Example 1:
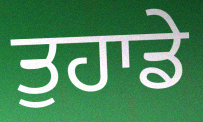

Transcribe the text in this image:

ਤੁਹਾਡੇ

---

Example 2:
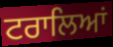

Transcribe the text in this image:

ਟਰਾਲਿਆਂ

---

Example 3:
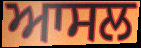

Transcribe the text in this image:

ਆਸਲ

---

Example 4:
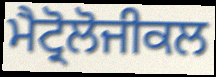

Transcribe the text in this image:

ਮੈਟ੍ਰੋਲੋਜੀਕਲ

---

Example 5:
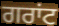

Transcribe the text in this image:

ਗਰਾਂਟ